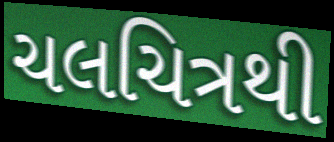
ચલચિત્રથી